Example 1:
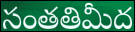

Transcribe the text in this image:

సంతతిమీద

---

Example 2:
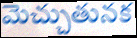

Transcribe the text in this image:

మెచ్చుతునక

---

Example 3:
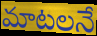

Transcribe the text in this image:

మాటలనే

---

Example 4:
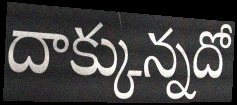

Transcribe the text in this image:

దాక్కున్నదో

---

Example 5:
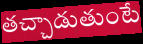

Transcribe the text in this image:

తచ్చాడుతుంటే